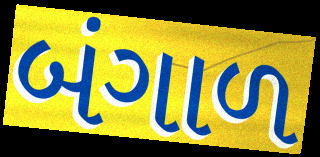
બંગાળ